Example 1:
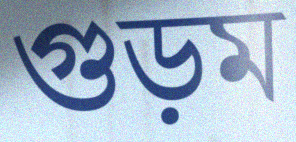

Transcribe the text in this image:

গুড়ম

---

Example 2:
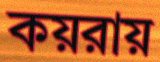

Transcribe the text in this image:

কয়রায়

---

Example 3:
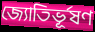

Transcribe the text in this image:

জ্যোতির্ভূষণ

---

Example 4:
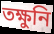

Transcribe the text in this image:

তক্ষুনি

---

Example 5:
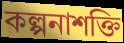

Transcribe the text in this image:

কল্পনাশক্তি